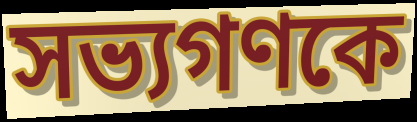
সভ্যগণকে